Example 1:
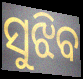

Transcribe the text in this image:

ସୁଝିବ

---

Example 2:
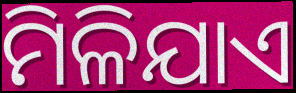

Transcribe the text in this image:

ମିଳିଯାଏ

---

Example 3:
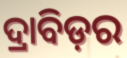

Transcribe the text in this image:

ଦ୍ରାବିଡ଼ର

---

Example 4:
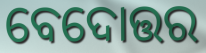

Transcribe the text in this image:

ବେଦୋତ୍ତର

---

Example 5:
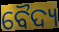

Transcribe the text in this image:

ବୈଦ୍ଯ